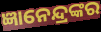
ଜ୍ଞାନେନ୍ଦ୍ରଙ୍କର